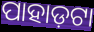
ପାହାଡ଼ଟା